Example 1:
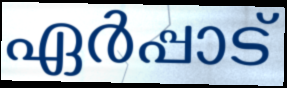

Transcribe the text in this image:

ഏർപ്പാട്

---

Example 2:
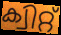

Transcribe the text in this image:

ക്വിറ്റ്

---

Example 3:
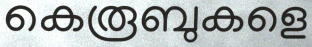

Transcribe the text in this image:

കെരൂബുകളെ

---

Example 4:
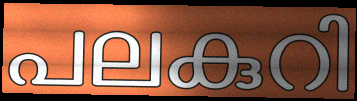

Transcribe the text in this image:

പലകുറി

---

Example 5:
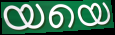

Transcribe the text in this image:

യയെ